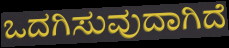
ಒದಗಿಸುವುದಾಗಿದೆ